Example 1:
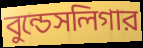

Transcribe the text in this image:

বুন্ডেসলিগার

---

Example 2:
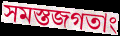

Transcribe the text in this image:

সমস্তজগতাং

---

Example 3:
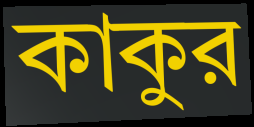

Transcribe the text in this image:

কাকুর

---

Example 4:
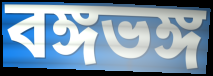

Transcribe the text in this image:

বঙ্গভঙ্গ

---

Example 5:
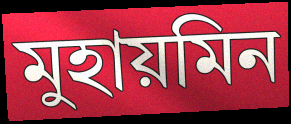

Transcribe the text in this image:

মুহায়মিন